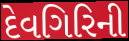
દેવગિરિની